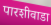
पारशीवाडा